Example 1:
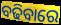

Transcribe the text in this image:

ବଢିବାରେ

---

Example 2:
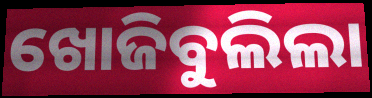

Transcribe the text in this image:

ଖୋଜିବୁଲିଲା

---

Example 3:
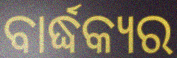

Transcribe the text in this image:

ବାର୍ଦ୍ଧକ୍ୟର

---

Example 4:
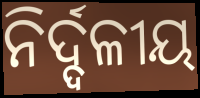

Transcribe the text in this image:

ନିର୍ଦ୍ଦଳୀୟ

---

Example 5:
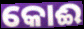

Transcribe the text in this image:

କୋଈ